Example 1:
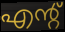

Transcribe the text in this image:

എന്റ്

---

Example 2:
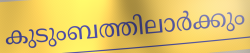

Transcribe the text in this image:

കുടുംബത്തിലാർക്കും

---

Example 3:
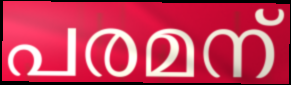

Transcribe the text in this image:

പരമന്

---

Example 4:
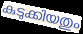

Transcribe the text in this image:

കുടുക്കിയതും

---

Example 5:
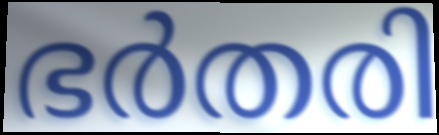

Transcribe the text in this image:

ഭർതരി